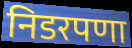
निडरपणा